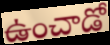
ఉంచాడో